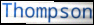
Thompson